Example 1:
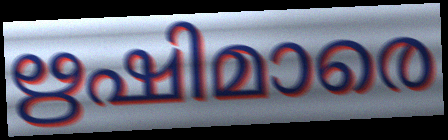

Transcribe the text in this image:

ഋഷിമാരെ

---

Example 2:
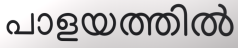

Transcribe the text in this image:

പാളയത്തിൽ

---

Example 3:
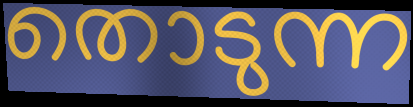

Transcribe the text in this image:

തൊടുന്ന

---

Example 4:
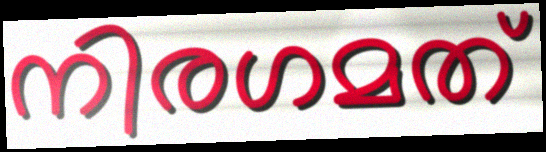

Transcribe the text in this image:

നിരഗമത്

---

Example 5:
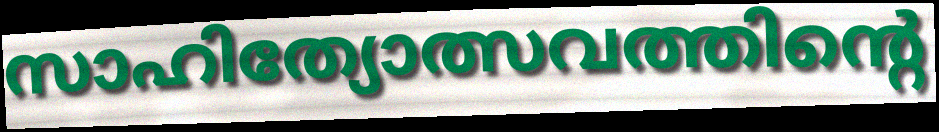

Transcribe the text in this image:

സാഹിത്യോത്സവത്തിന്റെ